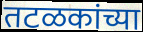
तटळकांच्या